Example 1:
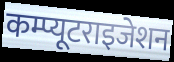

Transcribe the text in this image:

कम्प्यूटराइजेशन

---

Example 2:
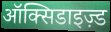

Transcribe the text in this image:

ऑक्सिडाइज़्ड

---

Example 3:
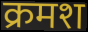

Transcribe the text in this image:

क्रमश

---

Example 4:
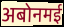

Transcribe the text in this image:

अबोनमई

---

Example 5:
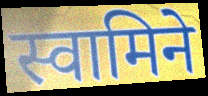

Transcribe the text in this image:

स्वामिने